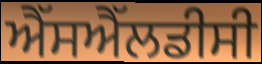
ਐੱਸਐੱਲਡੀਸੀ